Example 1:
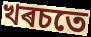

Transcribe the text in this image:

খৰচতে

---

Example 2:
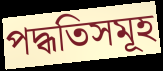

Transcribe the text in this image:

পদ্ধতিসমূহ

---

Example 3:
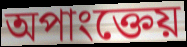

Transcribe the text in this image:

অপাংক্তেয়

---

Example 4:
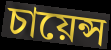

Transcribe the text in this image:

চায়েন্স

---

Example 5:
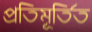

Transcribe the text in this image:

প্ৰতিমূৰ্তিত